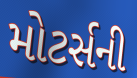
મોટર્સની